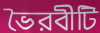
ভৈরবীটি